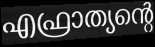
എഫ്രാത്യന്റെ